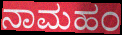
ನಾಮಹಂ